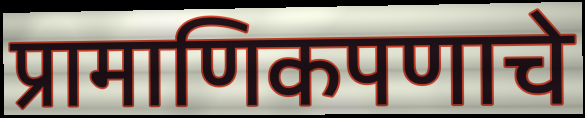
प्रामाणिकपणाचे